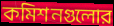
কমিশনগুলোর